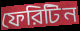
ফেরিটিন